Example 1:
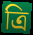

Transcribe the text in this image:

ত্রি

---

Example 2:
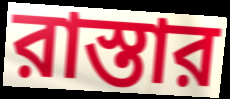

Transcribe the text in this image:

রাস্তার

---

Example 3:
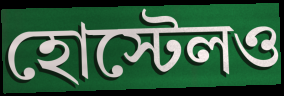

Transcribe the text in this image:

হোস্টেলও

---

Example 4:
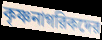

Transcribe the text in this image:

কৃষ্ণনাগরিকদের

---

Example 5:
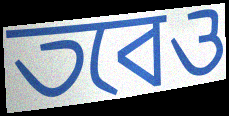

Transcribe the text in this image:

তবেও